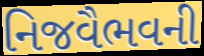
નિજવૈભવની